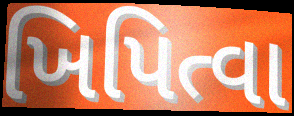
ખિપિત્વા